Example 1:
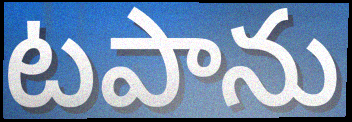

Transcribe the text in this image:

టపాను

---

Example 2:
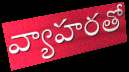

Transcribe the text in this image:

వ్యాహరతో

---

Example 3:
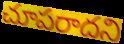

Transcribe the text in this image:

చూపరాదని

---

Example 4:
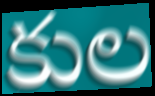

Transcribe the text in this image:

కుల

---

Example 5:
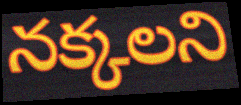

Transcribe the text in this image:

నక్కలని